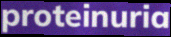
proteinuria